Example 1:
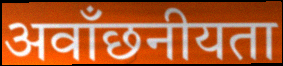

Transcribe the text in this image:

अवाँछनीयता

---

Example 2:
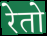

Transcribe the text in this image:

रेतो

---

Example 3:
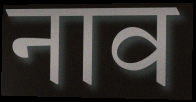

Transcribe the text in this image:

नाव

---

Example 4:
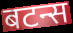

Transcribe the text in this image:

बटन्स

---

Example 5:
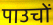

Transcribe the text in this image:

पाउचों